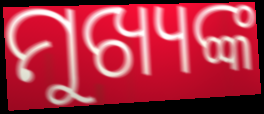
ମୁଖ୍ୟଙ୍କ